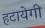
हटायेगी